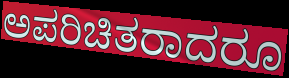
ಅಪರಿಚಿತರಾದರೂ